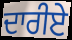
ਦਾਰੀਏ